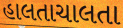
હાલતાચાલતા